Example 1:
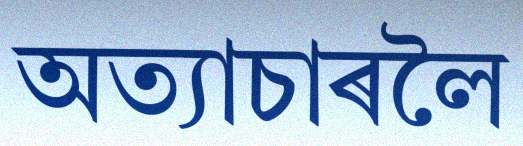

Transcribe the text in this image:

অত্যাচাৰলৈ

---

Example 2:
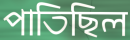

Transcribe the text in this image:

পাতিছিল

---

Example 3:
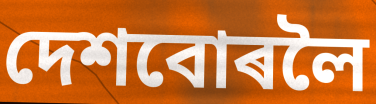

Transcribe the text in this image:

দেশবোৰলৈ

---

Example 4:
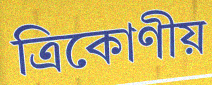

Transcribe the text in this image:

ত্ৰিকোণীয়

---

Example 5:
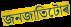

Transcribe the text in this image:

জনজাতিটোৰ